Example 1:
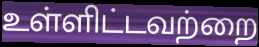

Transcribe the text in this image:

உள்ளிட்டவற்றை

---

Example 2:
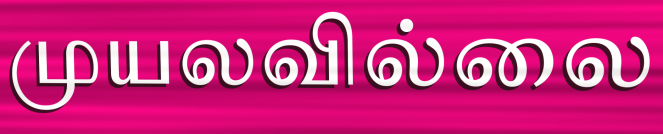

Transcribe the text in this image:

முயலவில்லை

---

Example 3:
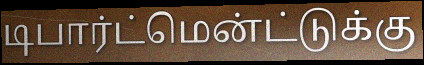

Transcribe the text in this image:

டிபார்ட்மென்ட்டுக்கு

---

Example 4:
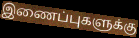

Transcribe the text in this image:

இணைப்புகளுக்கு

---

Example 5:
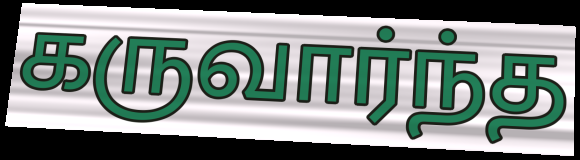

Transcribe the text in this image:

கருவார்ந்த